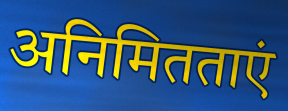
अनिमितताएं